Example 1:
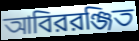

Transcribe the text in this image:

আবিররঞ্জিত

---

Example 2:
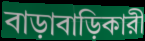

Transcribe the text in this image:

বাড়াবাড়িকারী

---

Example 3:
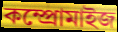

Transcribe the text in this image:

কম্প্রোমাইজ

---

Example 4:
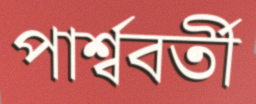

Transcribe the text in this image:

পার্শ্ববর্তী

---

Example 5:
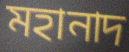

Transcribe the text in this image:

মহানাদ